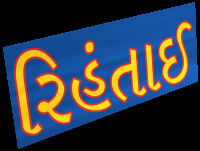
રિહંતાઈ